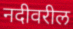
नदीवरील